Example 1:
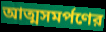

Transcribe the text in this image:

আত্মসমর্পণের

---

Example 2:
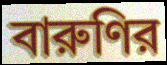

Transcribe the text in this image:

বারুণির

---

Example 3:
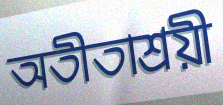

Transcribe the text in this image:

অতীতাশ্রয়ী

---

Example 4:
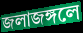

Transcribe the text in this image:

জলাজঙ্গলে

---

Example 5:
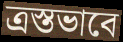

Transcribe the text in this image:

ত্রস্তভাবে